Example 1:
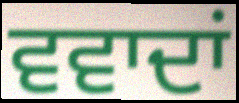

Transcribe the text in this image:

ਵਵਾਦਾਂ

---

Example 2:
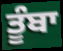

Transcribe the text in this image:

ਤੂੰਬਾ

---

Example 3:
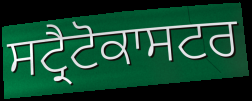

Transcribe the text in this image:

ਸਟ੍ਰੈਟੋਕਾਸਟਰ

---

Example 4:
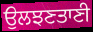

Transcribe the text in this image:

ਉਲਝਣਤਾਣੀ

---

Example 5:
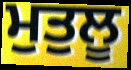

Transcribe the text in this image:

ਮੁਤੁਲੂ